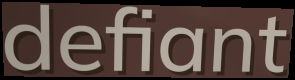
defiant